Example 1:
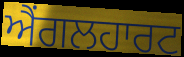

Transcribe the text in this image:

ਐਂਗਲਹਾਰਟ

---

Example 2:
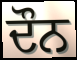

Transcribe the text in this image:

ਦੌਨ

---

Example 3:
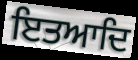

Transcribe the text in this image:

ਇਤਆਦਿ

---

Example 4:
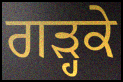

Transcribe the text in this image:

ਗੜ੍ਹਕੇ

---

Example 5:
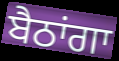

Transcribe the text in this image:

ਬੈਠਾਂਗਾ